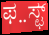
ಫ಼ಸ್ಟ್